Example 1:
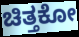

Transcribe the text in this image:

ಚಿತ್ತಕೋ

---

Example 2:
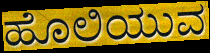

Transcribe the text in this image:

ಹೊಲಿಯುವ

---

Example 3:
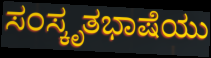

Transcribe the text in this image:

ಸಂಸ್ಕೃತಭಾಷೆಯು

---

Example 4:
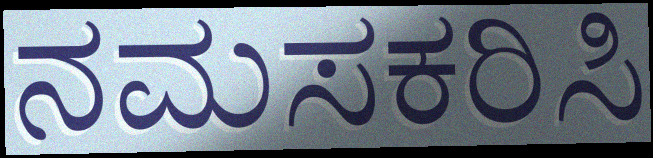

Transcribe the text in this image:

ನಮಸಕರಿಸಿ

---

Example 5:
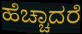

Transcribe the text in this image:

ಹೆಚ್ಚಾದರೆ